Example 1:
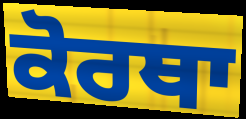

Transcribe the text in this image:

ਕੋਰਥਾ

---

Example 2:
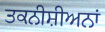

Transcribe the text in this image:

ਤਕਨੀਸ਼ੀਅਨਾਂ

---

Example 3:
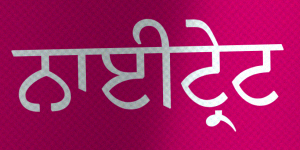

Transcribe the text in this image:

ਨਾਈਟ੍ਰੇਟ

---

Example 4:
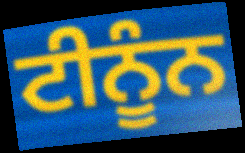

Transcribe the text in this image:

ਟੀਨੂੰਨ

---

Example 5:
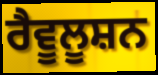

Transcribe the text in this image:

ਰੈਵੂਲੂਸ਼ਨ